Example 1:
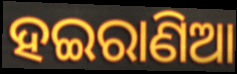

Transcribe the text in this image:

ହଇରାଣିଆ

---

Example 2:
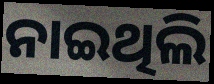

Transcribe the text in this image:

ନାଇଥିଲି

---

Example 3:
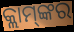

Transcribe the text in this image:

କ୍ଲାମ୍‌ଙ୍କର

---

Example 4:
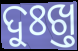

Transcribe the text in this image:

ଦୁଃଖ୍ତ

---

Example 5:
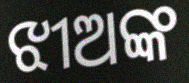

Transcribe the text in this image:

ଝୀଅଙ୍କ